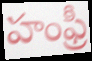
హంఫ్రీ